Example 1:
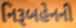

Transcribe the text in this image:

નિરૂબહેનની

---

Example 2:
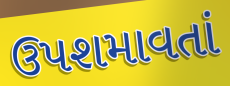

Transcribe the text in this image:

ઉપશમાવતાં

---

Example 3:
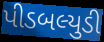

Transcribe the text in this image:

પીડબલ્યુડી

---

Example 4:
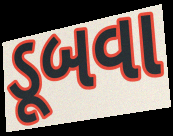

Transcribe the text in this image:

ડૂબવા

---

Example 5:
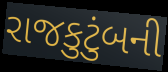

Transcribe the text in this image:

રાજકુટુંબની